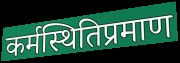
कर्मस्थितिप्रमाण